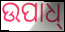
ଉପାଧ୍